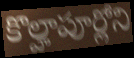
కొల్హాపూర్లోని